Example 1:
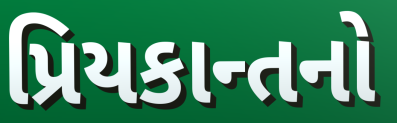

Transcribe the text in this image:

પ્રિયકાન્તનો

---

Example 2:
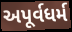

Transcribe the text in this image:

અપૂર્વધર્મ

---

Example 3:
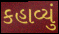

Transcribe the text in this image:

કહાવ્યું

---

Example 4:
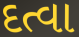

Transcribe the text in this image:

દત્વા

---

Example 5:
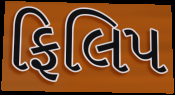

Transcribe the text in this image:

ફિલિપ